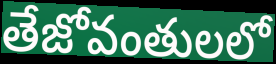
తేజోవంతులలో